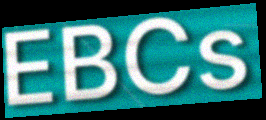
EBCs